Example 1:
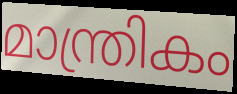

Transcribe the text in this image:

മാന്ത്രികം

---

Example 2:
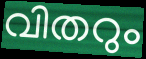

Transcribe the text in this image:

വിതറും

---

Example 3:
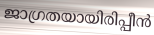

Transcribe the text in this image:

ജാഗ്രതയായിരിപ്പീൻ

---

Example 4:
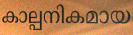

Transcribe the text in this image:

കാല്പനികമായ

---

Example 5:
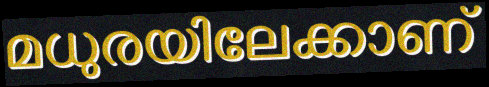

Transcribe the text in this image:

മധുരയിലേക്കാണ്